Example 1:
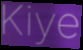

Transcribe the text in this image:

Kiye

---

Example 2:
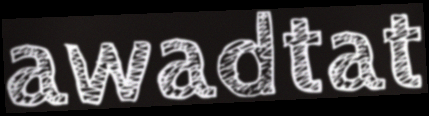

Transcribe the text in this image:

awadtat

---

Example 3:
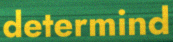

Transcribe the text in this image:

determind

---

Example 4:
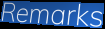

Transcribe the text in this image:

Remarks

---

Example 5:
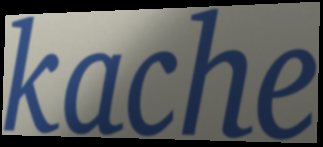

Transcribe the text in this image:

kache